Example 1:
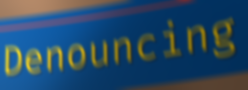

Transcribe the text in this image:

Denouncing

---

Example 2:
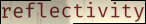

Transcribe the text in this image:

reflectivity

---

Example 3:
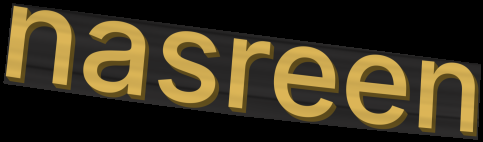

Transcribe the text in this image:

nasreen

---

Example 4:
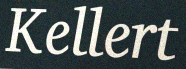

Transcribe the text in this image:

Kellert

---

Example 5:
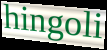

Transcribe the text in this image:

hingoli